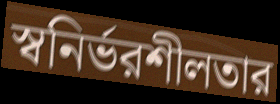
স্বনির্ভরশীলতার